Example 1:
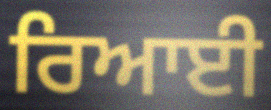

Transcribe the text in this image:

ਰਿਆਈ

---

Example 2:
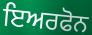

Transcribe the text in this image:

ਇਅਰਫੋਨ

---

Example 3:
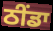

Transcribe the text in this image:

ਠੀਂਡਾ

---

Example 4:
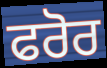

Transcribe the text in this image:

ਫਰੋਰ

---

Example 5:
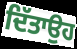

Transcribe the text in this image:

ਦਿੱਤਾਉਹ